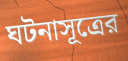
ঘটনাসূত্রের